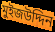
মুইজউদ্দিন